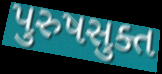
પુરુષસુક્ત